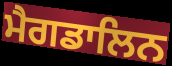
ਮੈਗਡਾਲਿਨ